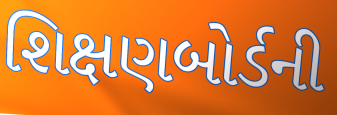
શિક્ષણબોર્ડની